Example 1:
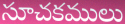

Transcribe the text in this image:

సూచకములు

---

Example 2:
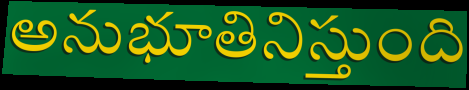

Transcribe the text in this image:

అనుభూతినిస్తుంది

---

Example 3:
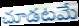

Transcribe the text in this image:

చూడటమే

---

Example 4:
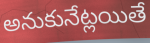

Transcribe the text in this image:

అనుకునేట్లయితే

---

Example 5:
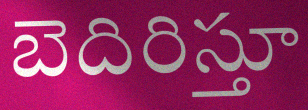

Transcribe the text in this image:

బెదిరిస్తూ